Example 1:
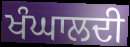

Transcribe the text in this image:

ਖੰਘਾਲਦੀ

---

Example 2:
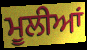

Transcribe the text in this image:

ਮੂਲੀਆਂ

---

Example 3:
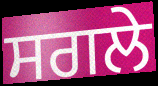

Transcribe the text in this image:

ਸਗਲੇ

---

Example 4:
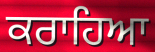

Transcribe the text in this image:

ਕਰਾਹਿਆ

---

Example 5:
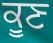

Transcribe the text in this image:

ਕੂਣ